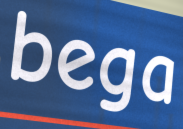
bega